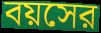
বয়সের